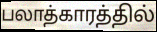
பலாத்காரத்தில்